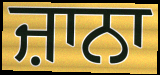
ਜ਼ਾਨਾ